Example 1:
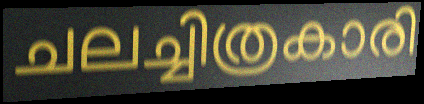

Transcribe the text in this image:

ചലച്ചിത്രകാരി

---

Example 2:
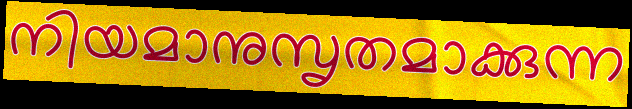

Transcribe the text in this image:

നിയമാനുസൃതമാക്കുന്ന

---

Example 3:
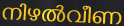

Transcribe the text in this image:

നിഴൽവീണ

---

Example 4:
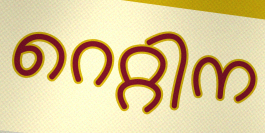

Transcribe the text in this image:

റെറ്റിന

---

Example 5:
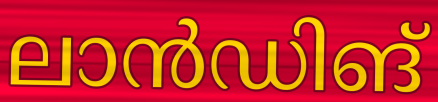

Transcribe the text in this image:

ലാൻഡിങ്